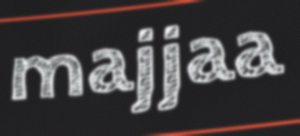
majjaa